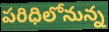
పరిధిలోనున్న